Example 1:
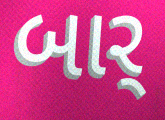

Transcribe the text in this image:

બાર્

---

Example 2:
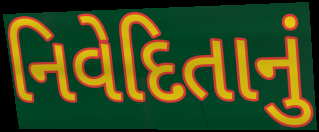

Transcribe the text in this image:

નિવેદિતાનું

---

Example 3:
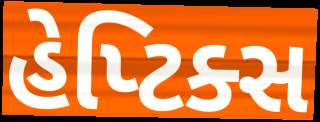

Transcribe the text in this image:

હેપ્ટિક્સ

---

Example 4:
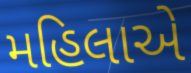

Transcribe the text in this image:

મહિલાએ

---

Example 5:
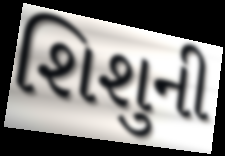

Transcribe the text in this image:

શિશુની